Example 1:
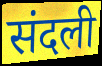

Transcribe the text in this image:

संदली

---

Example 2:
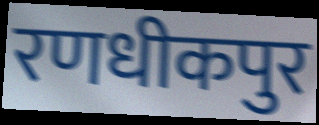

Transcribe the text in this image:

रणधीकपुर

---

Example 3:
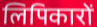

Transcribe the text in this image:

लिपिकारों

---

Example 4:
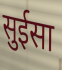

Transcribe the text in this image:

सुईसा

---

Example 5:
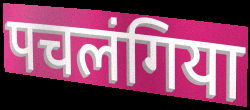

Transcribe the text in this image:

पचलंगिया